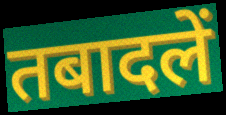
तबादलें